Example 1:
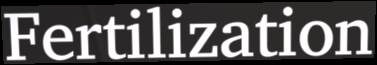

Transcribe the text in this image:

Fertilization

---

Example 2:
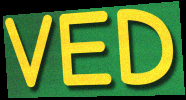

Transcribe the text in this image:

VED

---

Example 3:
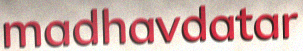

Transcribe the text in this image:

madhavdatar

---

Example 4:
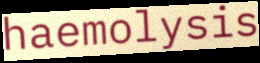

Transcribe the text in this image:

haemolysis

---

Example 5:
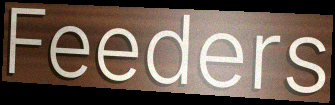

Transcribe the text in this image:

Feeders